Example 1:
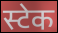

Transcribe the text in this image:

स्टेक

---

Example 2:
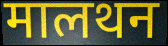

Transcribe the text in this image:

मालथन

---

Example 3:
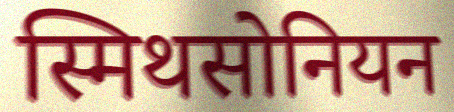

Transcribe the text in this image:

स्मिथसोनियन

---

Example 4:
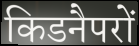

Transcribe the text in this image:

किडनैपरों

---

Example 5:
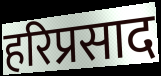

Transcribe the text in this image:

हरिप्रसाद